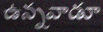
ఉన్నవాడూ